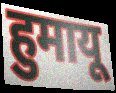
हुमायू